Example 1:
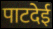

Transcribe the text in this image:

पाटदेई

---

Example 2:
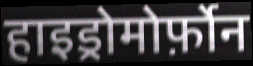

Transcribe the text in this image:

हाइड्रोमोर्फ़ोन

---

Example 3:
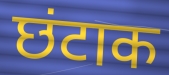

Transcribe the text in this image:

छंटाक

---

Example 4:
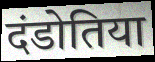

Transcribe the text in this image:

दंडोतिया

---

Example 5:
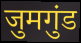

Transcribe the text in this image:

जुमगुंड